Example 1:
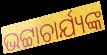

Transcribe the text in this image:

ଭଟ୍ଟାଚାର୍ଯ୍ୟଙ୍କ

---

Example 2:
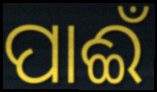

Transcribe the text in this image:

ପାଈଁ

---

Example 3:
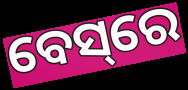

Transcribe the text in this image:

ବେସ୍‌ରେ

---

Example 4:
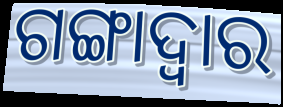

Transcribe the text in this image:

ଗଙ୍ଗାଦ୍ୱାର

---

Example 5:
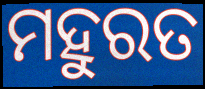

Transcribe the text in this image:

ମହୁରତ